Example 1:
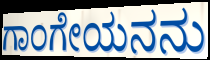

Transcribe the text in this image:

ಗಾಂಗೇಯನನು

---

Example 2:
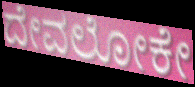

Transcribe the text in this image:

ದೇವಲೋಕೇ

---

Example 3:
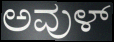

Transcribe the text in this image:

ಅವುಳ್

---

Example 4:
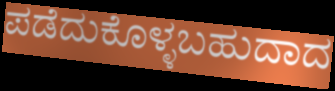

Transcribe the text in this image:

ಪಡೆದುಕೊಳ್ಳಬಹುದಾದ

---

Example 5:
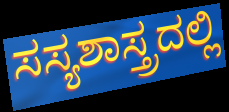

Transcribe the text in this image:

ಸಸ್ಯಶಾಸ್ತ್ರದಲ್ಲಿ